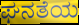
ಘನತೆಯ